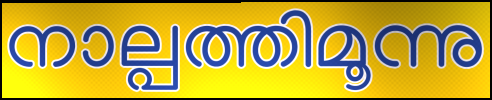
നാല്പത്തിമൂന്നു